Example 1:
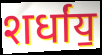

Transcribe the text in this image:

शर्धा॑य॒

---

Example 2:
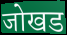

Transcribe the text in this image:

जोखड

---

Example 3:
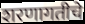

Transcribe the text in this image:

शरणागतीचे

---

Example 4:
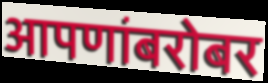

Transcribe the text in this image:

आपणांबरोबर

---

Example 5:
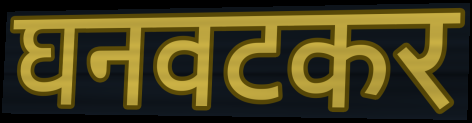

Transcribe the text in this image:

घनवटकर